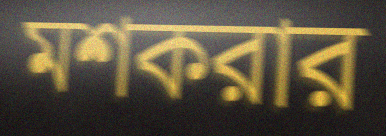
মশকরার